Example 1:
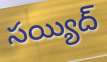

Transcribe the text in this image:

సయ్యిద్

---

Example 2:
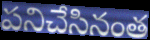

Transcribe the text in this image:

పనిచేసినంత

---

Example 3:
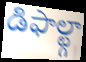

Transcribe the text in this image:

డిఫాల్ట్గా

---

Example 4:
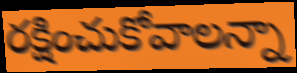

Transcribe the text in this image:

రక్షించుకోవాలన్నా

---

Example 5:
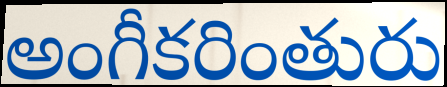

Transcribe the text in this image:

అంగీకరింతురు